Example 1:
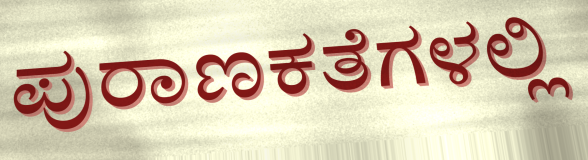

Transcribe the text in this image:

ಪುರಾಣಕತೆಗಳಲ್ಲಿ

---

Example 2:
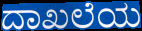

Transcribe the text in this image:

ದಾಖಲೆಯ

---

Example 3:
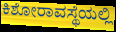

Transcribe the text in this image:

ಕಿಶೋರಾವಸ್ಥೆಯಲ್ಲಿ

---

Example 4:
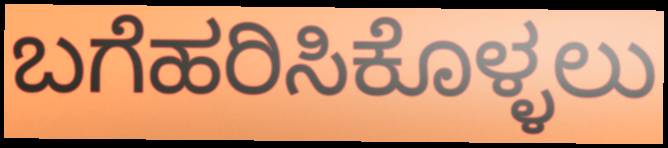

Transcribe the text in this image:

ಬಗೆಹರಿಸಿಕೊಳ್ಳಲು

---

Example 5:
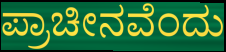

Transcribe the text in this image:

ಪ್ರಾಚೀನವೆಂದು